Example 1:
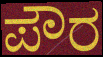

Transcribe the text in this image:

ಪೌರ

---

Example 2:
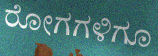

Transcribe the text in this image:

ರೋಗಗಳಿಗೂ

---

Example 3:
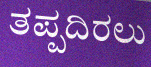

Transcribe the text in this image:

ತಪ್ಪದಿರಲು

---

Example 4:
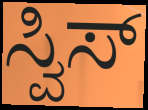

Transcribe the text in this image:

ಸ್ವಿಸ್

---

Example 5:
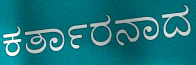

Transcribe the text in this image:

ಕರ್ತಾರನಾದ